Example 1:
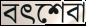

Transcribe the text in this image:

বৎশেবা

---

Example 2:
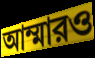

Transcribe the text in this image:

আম্মারও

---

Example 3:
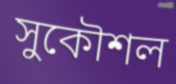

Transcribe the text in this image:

সুকৌশল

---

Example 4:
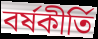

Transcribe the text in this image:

বর্ষকীর্তি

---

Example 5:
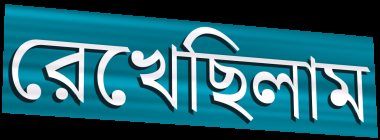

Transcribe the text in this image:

রেখেছিলাম